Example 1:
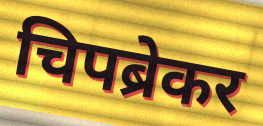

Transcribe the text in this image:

चिपब्रेकर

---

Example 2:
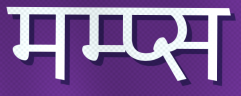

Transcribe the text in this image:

मम्प्स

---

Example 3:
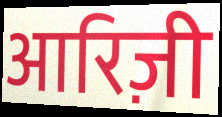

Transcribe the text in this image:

आरिज़ी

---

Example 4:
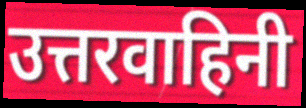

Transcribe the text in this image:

उत्तरवाहिनी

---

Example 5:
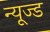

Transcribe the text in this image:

न्यूज्ड